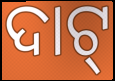
ଦାଟ୍